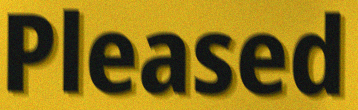
Pleased